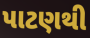
પાટણથી